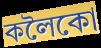
কলৈকো